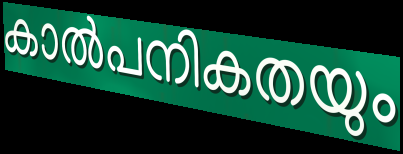
കാൽപനികതയും